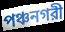
পঞ্চনগরী